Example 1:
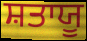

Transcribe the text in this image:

ਸ਼ਤਾਯੂ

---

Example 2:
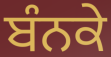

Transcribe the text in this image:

ਬੰਨਕੇ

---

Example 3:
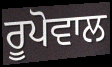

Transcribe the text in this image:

ਰੂਪੋਵਾਲ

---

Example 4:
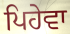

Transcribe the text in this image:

ਪਿਹੇਵਾ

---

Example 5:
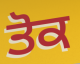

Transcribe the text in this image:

ਤੋਕ